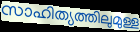
സാഹിത്യത്തിലുമുള്ള